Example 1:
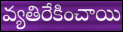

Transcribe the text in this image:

వ్యతిరేకించాయి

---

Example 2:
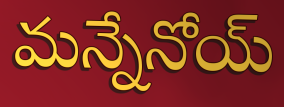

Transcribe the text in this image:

మన్నేనోయ్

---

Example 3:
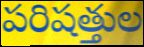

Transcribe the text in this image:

పరిషత్తుల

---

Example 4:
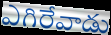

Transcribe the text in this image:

ఎగిరేవాడు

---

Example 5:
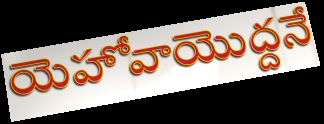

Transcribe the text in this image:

యెహోవాయొద్దనే